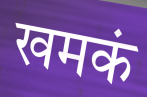
खमकं